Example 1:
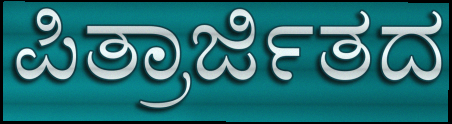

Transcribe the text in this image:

ಪಿತ್ರಾರ್ಜಿತದ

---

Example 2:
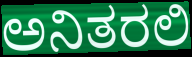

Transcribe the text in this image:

ಅನಿತರಲಿ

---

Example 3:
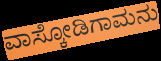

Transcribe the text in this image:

ವಾಸ್ಕೋಡಿಗಾಮನು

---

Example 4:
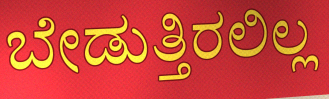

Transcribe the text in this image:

ಬೇಡುತ್ತಿರಲಿಲ್ಲ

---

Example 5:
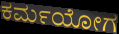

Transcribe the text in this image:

ಕರ್ಮಯೋಗ